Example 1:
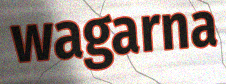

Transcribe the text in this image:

wagarna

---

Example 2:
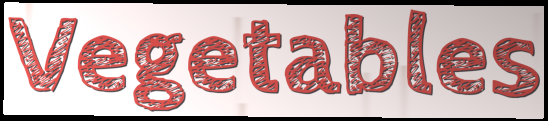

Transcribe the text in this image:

Vegetables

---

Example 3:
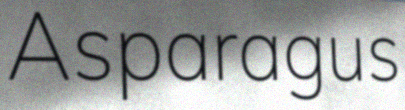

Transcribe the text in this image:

Asparagus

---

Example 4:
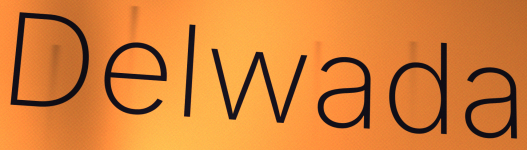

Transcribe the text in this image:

Delwada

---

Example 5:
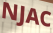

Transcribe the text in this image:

NJAC